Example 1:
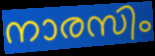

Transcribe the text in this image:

നാരസിം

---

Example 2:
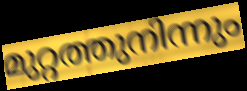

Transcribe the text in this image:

മുറ്റത്തുനിന്നും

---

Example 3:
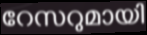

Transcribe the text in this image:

റേസറുമായി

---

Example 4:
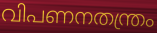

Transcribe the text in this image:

വിപണനതന്ത്രം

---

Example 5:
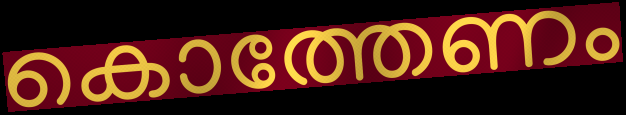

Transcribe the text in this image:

കൊത്തേണം